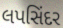
લપસિંદર